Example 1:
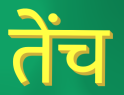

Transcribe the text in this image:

तेंच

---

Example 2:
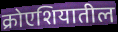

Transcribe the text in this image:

क्रोएशियातील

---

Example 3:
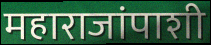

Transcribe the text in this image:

महाराजांपाशी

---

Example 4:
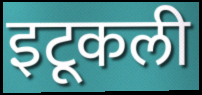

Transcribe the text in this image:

इटूकली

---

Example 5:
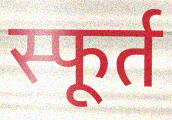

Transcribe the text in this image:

स्फूर्त